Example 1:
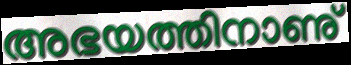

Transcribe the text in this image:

അഭയത്തിനാണു്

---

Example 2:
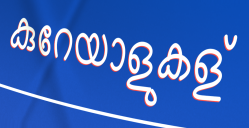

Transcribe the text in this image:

കുറേയാളുകള്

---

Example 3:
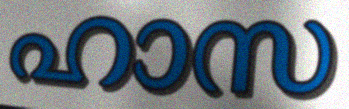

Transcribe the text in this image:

ഹാസ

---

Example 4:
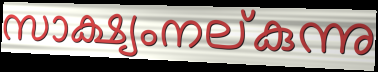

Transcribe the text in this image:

സാക്ഷ്യംനല്കുന്നു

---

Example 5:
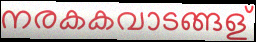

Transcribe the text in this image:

നരകകവാടങ്ങള്